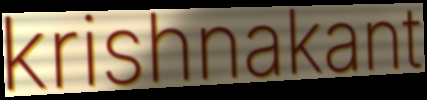
krishnakant